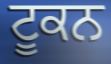
ਟੂਕਨ